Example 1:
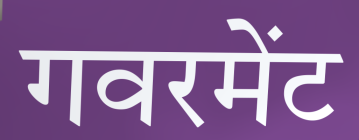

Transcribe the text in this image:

गवरमेंट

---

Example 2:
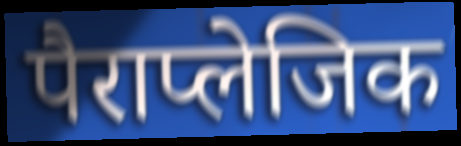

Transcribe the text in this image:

पैराप्लेजिक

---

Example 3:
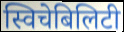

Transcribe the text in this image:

स्विचेबिलिटी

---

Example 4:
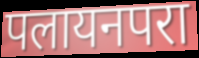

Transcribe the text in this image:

पलायनपरा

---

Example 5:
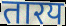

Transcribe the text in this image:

तारय